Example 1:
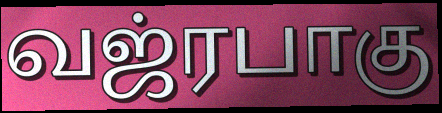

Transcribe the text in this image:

வஜ்ரபாகு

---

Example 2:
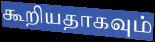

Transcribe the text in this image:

கூறியதாகவும்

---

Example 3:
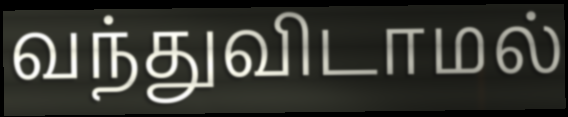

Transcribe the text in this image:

வந்துவிடாமல்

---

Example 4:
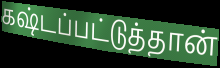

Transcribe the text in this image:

கஷ்டப்பட்டுத்தான்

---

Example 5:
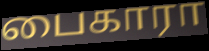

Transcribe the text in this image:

பைகாரா